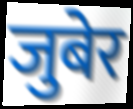
जुबेर